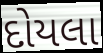
દોયલા